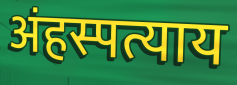
अंहस्पत्याय